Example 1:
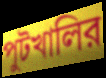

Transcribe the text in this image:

পুটখালির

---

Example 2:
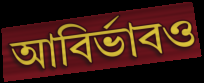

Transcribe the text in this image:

আবির্ভাবও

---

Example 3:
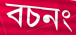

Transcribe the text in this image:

বচনং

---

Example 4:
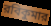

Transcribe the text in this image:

রবিকুমার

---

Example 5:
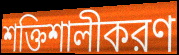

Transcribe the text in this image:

শক্তিশালীকরণ